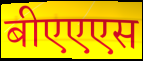
बीएएएस